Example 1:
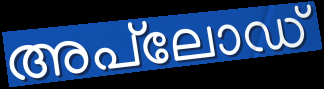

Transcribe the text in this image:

അപ്‌ലോഡ്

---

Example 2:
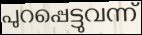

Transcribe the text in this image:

പുറപ്പെട്ടുവന്ന്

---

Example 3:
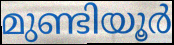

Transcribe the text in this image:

മുണ്ടിയൂർ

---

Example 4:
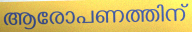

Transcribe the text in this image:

ആരോപണത്തിന്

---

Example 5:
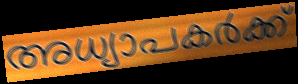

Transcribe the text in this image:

അധ്യാപകർക്ക്